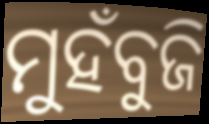
ମୁହଁବୁଜି